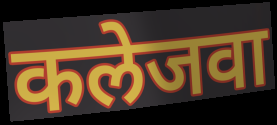
कलेजवा